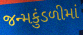
જન્મકુંડળીમાં